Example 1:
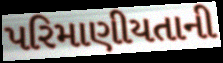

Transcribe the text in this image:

પરિમાણીયતાની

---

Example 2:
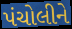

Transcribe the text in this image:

પંચોલીને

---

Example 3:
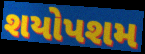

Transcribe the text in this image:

શયોપશમ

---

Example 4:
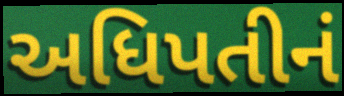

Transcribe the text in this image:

અધિપતીનં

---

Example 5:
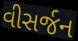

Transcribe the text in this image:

વીસર્જન